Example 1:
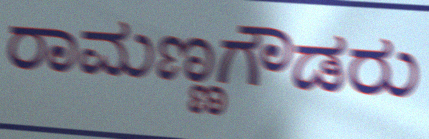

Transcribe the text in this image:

ರಾಮಣ್ಣಗೌಡರು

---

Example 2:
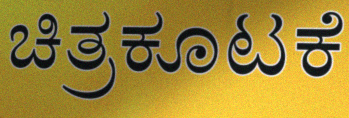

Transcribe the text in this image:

ಚಿತ್ರಕೂಟಕೆ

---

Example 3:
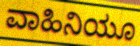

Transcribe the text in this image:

ವಾಹಿನಿಯೂ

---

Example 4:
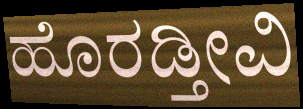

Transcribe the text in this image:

ಹೊರಡ್ತೀವಿ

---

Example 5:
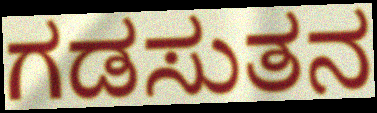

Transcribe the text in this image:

ಗಡಸುತನ